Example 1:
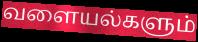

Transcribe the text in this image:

வளையல்களும்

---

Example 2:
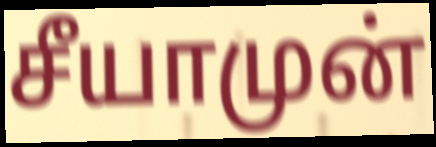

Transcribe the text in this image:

சீயாமுன்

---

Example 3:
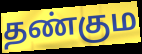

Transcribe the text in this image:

தண்கும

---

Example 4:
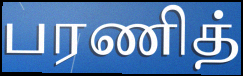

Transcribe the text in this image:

பரணித்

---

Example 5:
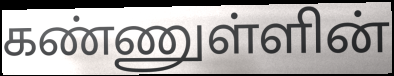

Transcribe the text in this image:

கண்ணுள்ளின்